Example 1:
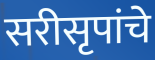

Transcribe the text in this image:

सरीसृपांचे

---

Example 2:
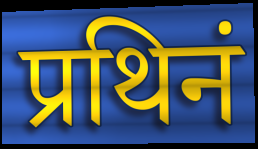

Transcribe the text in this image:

प्रथिनं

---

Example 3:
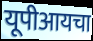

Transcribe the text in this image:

यूपीआयचा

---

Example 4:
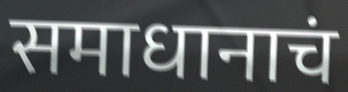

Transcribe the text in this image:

समाधानाचं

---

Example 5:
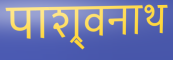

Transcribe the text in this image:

पाश्र्वनाथ